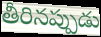
తీరినప్పుడు